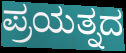
ಪ್ರಯತ್ನದ